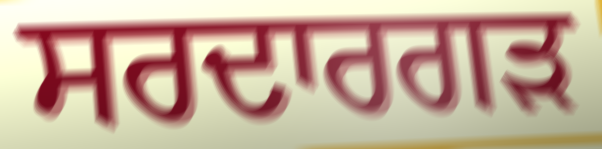
ਸਰਦਾਰਗੜ